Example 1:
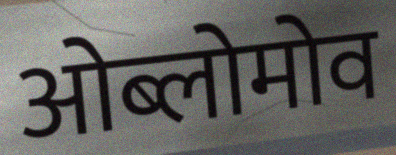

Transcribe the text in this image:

ओब्लोमोव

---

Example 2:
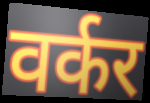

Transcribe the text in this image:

वर्कर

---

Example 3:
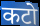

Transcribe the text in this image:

कटो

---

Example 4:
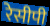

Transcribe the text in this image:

रेसीपी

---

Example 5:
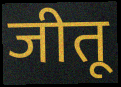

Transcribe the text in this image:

जीतू